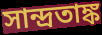
সান্দ্রতাঙ্ক